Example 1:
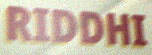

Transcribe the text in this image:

RIDDHI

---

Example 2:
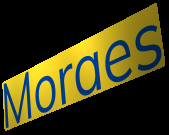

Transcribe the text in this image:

Moraes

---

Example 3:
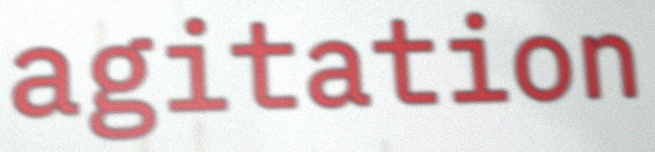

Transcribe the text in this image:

agitation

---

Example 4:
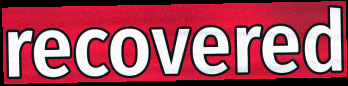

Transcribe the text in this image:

recovered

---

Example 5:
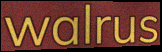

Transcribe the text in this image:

walrus